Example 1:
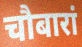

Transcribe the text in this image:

चौबारां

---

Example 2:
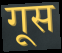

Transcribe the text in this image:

गूस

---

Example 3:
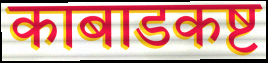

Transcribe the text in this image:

काबाडकष्ट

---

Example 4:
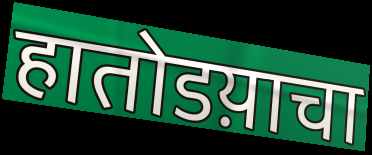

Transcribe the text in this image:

हातोडय़ाचा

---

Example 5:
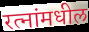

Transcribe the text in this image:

रत्नांमधील